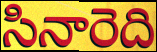
సినారెది